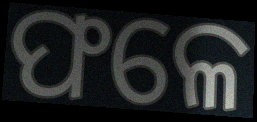
ଫଳେ